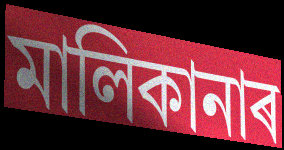
মালিকানাৰ